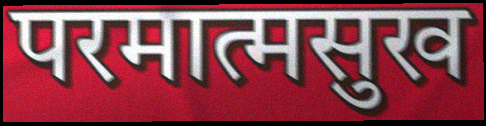
परमात्मसुख